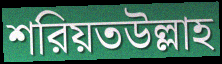
শরিয়তউল্লাহ